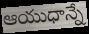
ఆయుధాన్నే